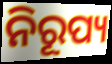
ନିରୂପ୍ୟ